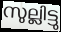
സുല്ലിട്ടു